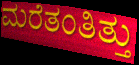
ಮರೆತಂತಿತ್ತು